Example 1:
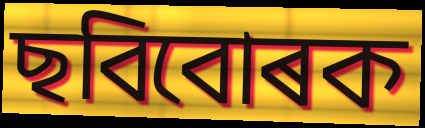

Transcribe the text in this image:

ছবিবোৰক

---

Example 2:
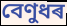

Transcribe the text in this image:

বেণুধৰ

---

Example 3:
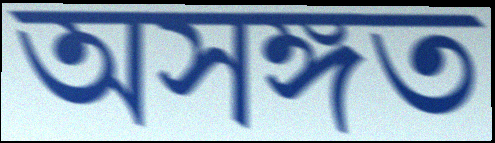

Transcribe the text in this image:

অসঙ্গত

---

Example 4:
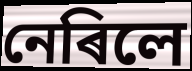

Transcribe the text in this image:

নেৰিলে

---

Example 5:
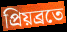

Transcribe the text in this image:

প্ৰিয়ব্ৰতে